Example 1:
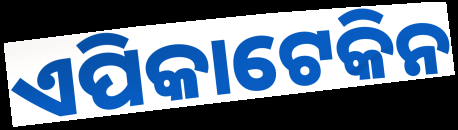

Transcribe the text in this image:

ଏପିକାଟେକିନ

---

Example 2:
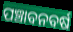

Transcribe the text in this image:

ପଞ୍ଚାବନବର୍ଷ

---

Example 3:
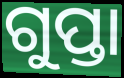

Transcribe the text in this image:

ଗୁପ୍ତା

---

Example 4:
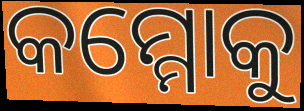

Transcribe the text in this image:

କମ୍ମୋକୁ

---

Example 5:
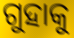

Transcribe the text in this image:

ଗୁହାକୁ